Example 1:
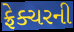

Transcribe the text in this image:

ફ્રેક્ચરની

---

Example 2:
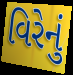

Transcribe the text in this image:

વિરેનું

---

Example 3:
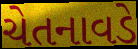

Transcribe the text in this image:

ચેતનાવડે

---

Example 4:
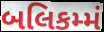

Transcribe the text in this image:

બલિકમ્મં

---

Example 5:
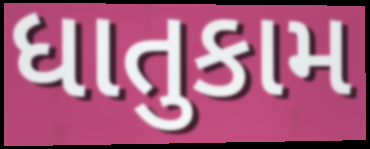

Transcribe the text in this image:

ધાતુકામ